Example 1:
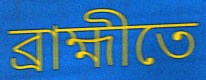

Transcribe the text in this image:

ব্রাহ্মীতে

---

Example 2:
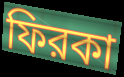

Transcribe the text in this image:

ফিরকা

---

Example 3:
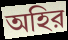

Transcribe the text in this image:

অহির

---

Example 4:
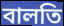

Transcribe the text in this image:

বালতি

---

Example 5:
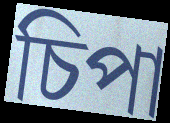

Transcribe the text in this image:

চিপা